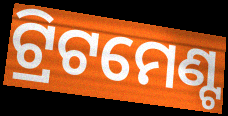
ଟ୍ରିଟମେଣ୍ଟ